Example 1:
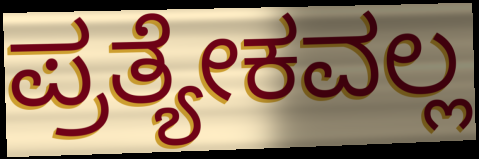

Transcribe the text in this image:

ಪ್ರತ್ಯೇಕವಲ್ಲ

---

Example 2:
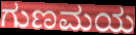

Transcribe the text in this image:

ಗುಣಮಯ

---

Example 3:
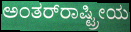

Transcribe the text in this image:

ಅಂತರ್‌ರಾಷ್ಟ್ರೀಯ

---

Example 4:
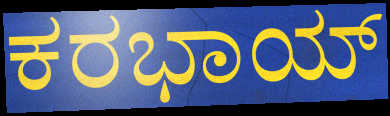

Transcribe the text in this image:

ಕರಭಾಯ್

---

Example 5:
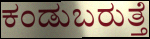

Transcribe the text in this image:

ಕಂಡುಬರುತ್ತೆ